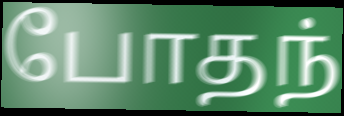
போதந்